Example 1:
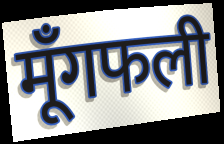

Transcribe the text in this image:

मूँगफली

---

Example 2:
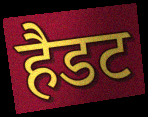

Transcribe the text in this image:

हैडट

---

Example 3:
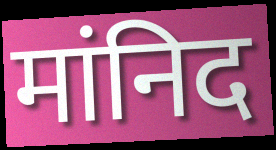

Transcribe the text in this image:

मांनिद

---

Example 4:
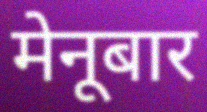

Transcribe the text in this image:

मेनूबार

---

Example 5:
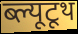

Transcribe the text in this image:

ब्ल्यूटूथ